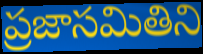
ప్రజాసమితిని